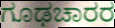
ಗೂಢಚಾರರ